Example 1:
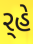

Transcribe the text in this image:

ર્‍હે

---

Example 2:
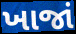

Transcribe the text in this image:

ખાજાં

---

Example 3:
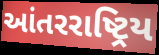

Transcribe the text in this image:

આંતરરાષ્ટ્રિય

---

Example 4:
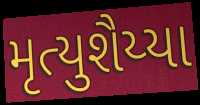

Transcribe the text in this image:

મૃત્યુશૈય્યા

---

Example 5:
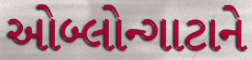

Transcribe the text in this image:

ઓબ્લોન્ગાટાને